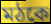
মঠকে